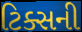
ટિક્સની